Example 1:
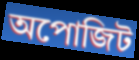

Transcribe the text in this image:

অপোজিট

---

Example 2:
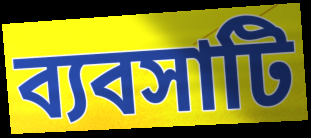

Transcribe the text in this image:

ব্যবসাটি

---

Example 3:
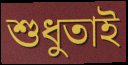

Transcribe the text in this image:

শুধুতাই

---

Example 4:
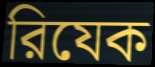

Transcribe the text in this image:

রিযেক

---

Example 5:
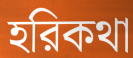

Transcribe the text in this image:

হরিকথা